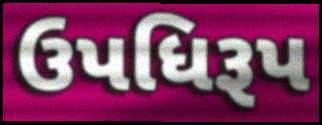
ઉપધિરૂપ